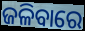
ଜଳିବାରେ